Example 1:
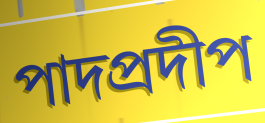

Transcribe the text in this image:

পাদপ্রদীপ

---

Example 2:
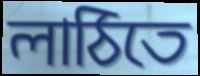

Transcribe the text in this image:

লাঠিতে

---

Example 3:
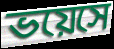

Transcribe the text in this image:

ভয়েসে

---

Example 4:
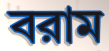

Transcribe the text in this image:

বরাম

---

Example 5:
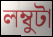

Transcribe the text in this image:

লম্বুটা